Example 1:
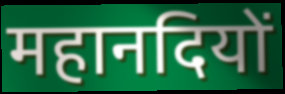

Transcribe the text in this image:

महानदियों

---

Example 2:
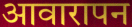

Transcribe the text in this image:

आवारापन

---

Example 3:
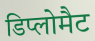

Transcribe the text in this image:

डिप्लोमैट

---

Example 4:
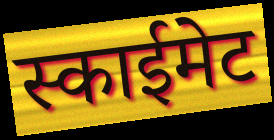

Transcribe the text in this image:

स्काईमेट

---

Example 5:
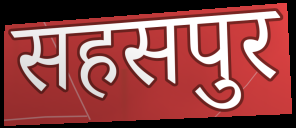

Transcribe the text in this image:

सहसपुर